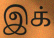
இக்